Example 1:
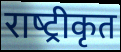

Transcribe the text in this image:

राष्ट्रीकृत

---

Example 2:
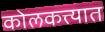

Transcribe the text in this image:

कोलकत्त्यात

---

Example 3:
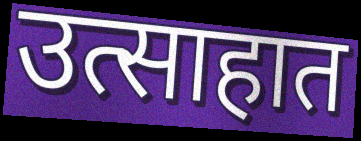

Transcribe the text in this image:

उत्साहात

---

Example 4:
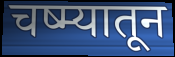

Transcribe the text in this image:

चष्म्यातून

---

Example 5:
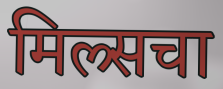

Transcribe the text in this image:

मिल्सचा